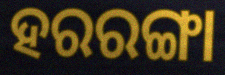
ହରରଙ୍ଗା